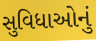
સુવિધાઓનું